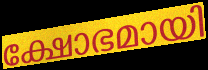
ക്ഷോഭമായി